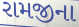
રામજીના